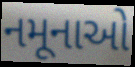
નમૂનાઓ